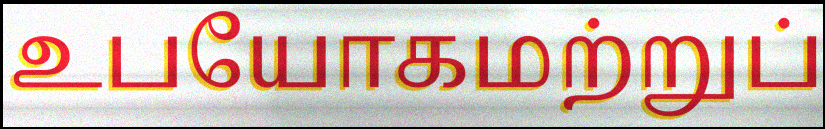
உபயோகமற்றுப்